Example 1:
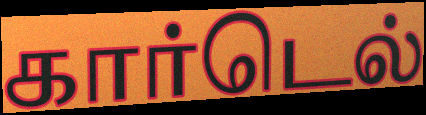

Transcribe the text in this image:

கார்டெல்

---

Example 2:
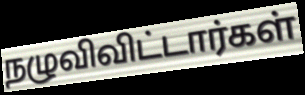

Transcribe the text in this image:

நழுவிவிட்டார்கள்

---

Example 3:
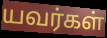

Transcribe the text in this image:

யவர்கள்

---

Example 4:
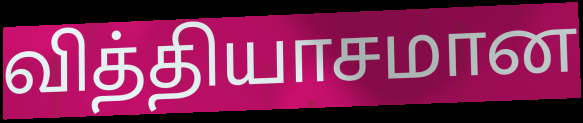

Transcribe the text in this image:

வித்தியாசமான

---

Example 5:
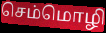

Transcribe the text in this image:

செம்மொழி